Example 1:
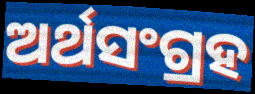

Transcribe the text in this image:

ଅର୍ଥସଂଗ୍ରହ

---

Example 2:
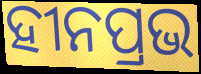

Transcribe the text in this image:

ହୀନପ୍ରଭ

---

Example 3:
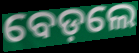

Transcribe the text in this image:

ବେଡ଼ଲେ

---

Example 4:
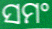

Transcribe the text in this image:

ସମଂ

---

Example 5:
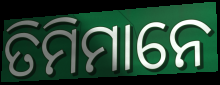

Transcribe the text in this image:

ତିମିମାନେ